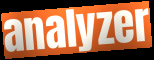
analyzer